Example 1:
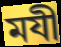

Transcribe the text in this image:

মযী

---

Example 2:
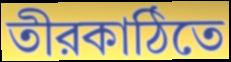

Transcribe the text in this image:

তীরকাঠিতে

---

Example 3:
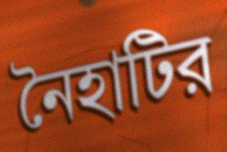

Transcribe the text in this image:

নৈহাটির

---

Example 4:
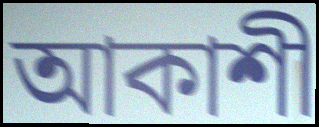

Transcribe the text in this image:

আকাশী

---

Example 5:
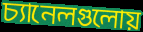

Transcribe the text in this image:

চ্যানেলগুলোয়